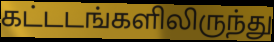
கட்டடங்களிலிருந்து